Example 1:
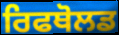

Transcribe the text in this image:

ਰਿਫਥੋਲਡ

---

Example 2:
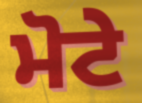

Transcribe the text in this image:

ਮੋਟੇ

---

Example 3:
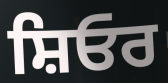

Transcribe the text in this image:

ਸ਼ਿਓਰ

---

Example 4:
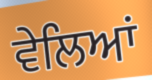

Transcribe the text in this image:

ਵੇਲਿਆਂ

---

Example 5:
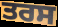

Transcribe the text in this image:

ਤਰਸ